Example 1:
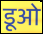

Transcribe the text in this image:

डूओ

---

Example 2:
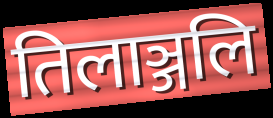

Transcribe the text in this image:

तिलाञ्जलि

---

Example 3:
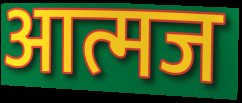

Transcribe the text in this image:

आत्मज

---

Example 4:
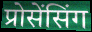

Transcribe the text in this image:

प्रोसेंसिंग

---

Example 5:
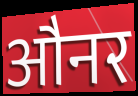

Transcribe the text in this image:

औनर